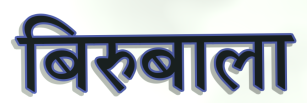
बिरुबाला